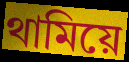
থামিয়ে